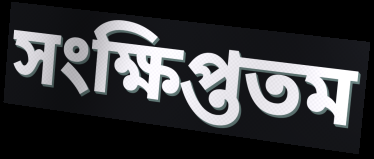
সংক্ষিপ্ততম